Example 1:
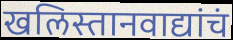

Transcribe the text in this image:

खलिस्तानवाद्यांचं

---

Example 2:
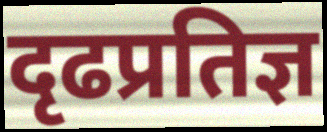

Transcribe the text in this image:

दृढप्रतिज्ञ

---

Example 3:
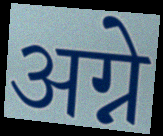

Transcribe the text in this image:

अग्ने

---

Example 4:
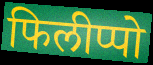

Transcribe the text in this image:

फिलीप्पो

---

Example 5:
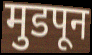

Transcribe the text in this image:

मुडपून